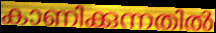
കാണിക്കുന്നതിൽ